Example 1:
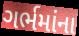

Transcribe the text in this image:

ગર્ભમાંના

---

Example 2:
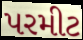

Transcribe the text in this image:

પરમીટ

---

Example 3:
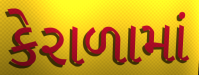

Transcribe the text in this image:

કેરાળામાં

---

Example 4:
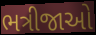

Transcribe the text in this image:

ભત્રીજાઓ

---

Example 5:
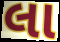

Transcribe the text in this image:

લા